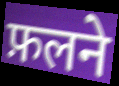
फ़लने